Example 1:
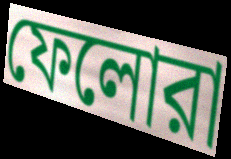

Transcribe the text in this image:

ফেলোরা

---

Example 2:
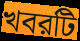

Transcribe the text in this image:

খবরটি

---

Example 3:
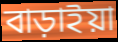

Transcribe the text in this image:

বাড়াইয়া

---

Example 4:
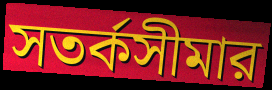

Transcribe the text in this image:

সতর্কসীমার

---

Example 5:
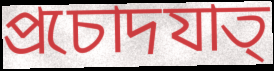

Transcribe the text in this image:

প্রচোদযাত্